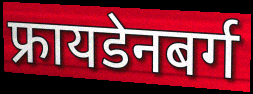
फ्रायडेनबर्ग